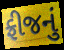
ફ્રીજનું